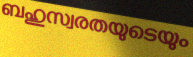
ബഹുസ്വരതയുടെയും